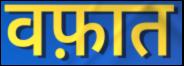
वफ़ात